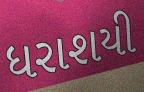
ધરાશયી